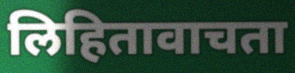
लिहितावाचता